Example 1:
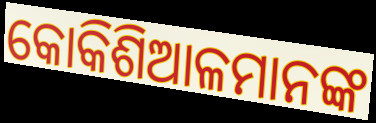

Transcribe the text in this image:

କୋକିଶିଆଳମାନଙ୍କ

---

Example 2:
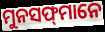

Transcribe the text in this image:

ମୁନସଫ୍‍ମାନେ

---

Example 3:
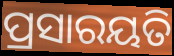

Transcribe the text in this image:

ପ୍ରସାରୟତି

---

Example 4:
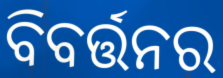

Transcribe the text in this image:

ବିବର୍ତ୍ତନର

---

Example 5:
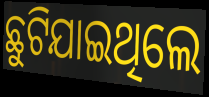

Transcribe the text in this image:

ଛୁଟିଯାଇଥିଲେ